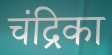
चंद्रिका